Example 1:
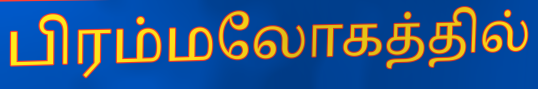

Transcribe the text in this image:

பிரம்மலோகத்தில்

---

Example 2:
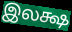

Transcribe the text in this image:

இலக்ஷ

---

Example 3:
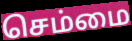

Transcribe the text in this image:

செம்மை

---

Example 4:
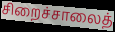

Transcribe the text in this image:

சிறைச்சாலைத்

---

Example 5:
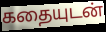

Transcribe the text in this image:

கதையுடன்